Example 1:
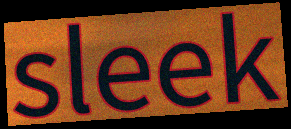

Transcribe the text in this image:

sleek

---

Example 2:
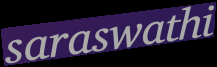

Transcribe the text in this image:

saraswathi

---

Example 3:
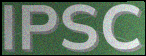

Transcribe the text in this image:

IPSC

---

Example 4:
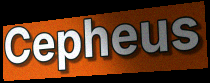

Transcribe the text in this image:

Cepheus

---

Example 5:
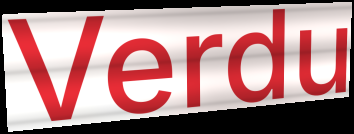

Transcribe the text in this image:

Verdu